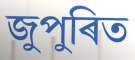
জুপুৰিত